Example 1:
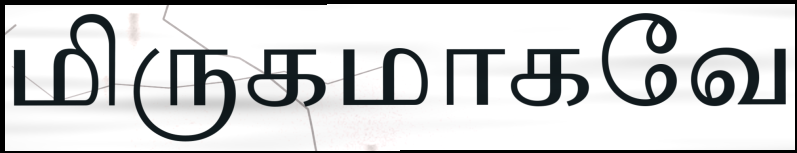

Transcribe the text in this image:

மிருகமாகவே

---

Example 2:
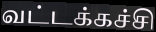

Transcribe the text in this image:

வட்டக்கச்சி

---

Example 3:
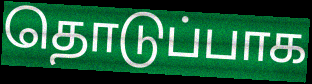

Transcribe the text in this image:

தொடுப்பாக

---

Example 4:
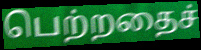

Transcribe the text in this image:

பெற்றதைச்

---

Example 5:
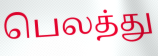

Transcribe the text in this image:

பெலத்து